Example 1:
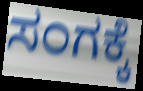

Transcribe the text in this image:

ಸಂಗಕ್ಕೆ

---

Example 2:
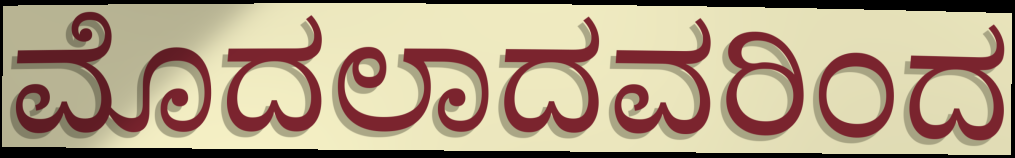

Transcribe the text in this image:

ಮೊದಲಾದವರಿಂದ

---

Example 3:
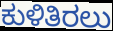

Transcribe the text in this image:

ಕುಳಿತಿರಲು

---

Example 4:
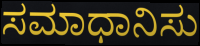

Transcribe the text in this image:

ಸಮಾಧಾನಿಸು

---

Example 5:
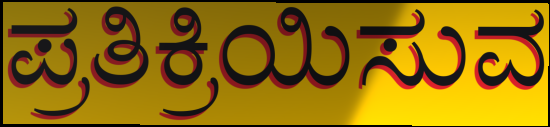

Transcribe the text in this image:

ಪ್ರತಿಕ್ರಿಯಿಸುವ